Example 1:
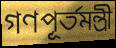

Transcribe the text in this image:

গণপূর্তমন্ত্রী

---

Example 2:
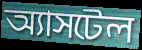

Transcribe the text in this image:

অ্যাসটেল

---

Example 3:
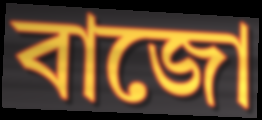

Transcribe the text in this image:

বাজো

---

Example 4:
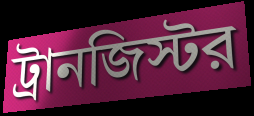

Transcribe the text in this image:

ট্রানজিস্টর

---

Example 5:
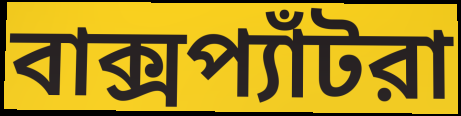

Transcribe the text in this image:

বাক্সপ্যাঁটরা